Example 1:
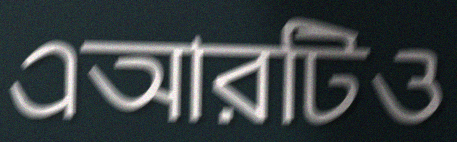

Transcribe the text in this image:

এআরটিও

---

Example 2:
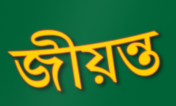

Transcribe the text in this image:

জীয়ন্ত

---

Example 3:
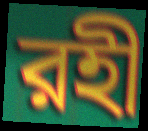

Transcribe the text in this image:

রহী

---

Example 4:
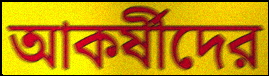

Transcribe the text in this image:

আকর্ষীদের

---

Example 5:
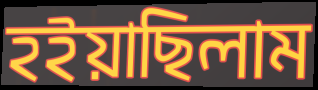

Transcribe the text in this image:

হইয়াছিলাম